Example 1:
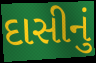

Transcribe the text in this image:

દાસીનું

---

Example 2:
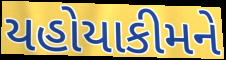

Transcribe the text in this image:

યહોયાકીમને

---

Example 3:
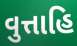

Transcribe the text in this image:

વુત્તાહિ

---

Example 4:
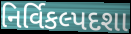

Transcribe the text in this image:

નિર્વિકલ્પદશા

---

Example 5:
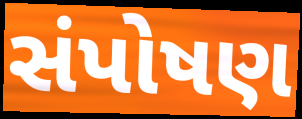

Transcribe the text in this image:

સંપોષણ